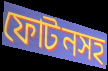
ফোটনসহ